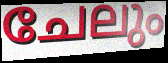
ചേലും